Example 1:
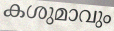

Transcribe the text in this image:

കശുമാവും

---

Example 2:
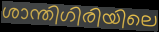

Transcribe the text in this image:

ശാന്തിഗിരിയിലെ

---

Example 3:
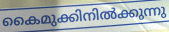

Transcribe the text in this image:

കൈമുക്കിനിൽക്കുന്നു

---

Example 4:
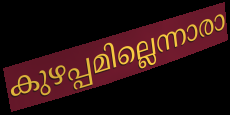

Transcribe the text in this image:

കുഴപ്പമില്ലെന്നാരാ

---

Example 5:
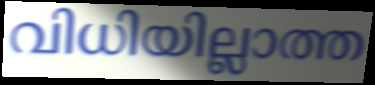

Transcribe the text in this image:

വിധിയില്ലാത്ത